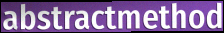
abstractmethod